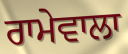
ਰਾਮੇਵਾਲਾ